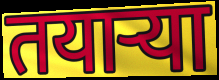
तयाऱ्या